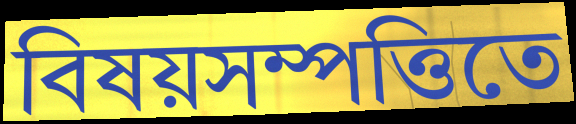
বিষয়সম্পত্তিতে